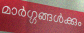
മാർഗ്ഗങ്ങൾക്കും